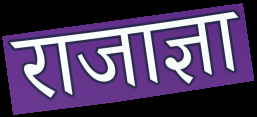
राजाज्ञा